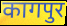
कागपुर